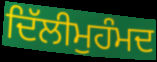
ਦਿੱਲੀਮੁਹੰਮਦ